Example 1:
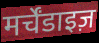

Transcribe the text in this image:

मर्चेंडाइज़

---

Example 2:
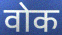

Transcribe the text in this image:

वोक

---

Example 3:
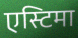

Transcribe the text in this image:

एस्टिमा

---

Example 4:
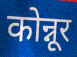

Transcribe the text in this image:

कोन्नूर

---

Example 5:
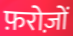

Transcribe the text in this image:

फ़रोज़ों